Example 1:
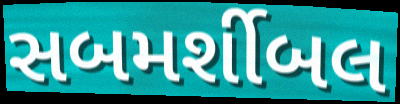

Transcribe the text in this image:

સબમર્શીબલ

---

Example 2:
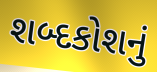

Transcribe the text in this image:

શબ્દકોશનું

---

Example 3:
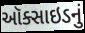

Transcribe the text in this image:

ઑક્સાઇડનું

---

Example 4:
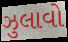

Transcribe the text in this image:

ઝુલાવો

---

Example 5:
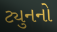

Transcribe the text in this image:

ટ્યુનનો